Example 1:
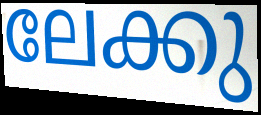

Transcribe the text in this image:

ലേക്കു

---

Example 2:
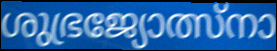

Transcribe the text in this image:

ശുഭ്രജ്യോത്സ്നാ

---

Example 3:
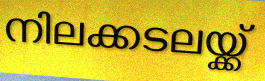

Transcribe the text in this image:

നിലക്കടലയ്ക്ക്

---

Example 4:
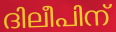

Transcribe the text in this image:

ദിലീപിന്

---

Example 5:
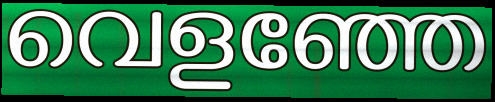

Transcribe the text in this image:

വെളഞ്ഞേ